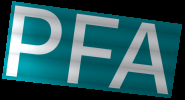
PFA